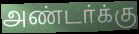
அண்டர்க்கு